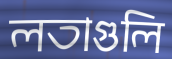
লতাগুলি